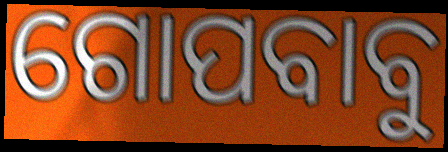
ଗୋପବାବୁ